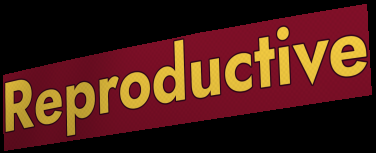
Reproductive